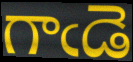
గాఁడె